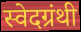
स्वेदग्रंथी